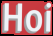
Hoi